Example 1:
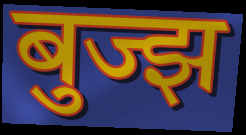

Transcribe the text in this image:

बुज्झ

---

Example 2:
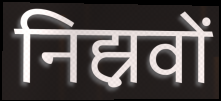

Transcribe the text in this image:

निह्नवों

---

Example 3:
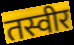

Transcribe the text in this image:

तस्‍वीर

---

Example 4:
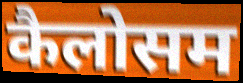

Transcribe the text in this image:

कैलोसम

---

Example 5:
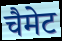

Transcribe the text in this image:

चैमेट